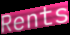
Rents